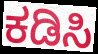
ಕಡಿಸಿ